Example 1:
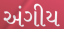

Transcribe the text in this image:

અંગીય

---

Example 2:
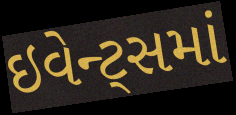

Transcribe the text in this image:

ઇવેન્ટ્સમાં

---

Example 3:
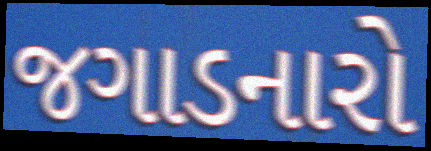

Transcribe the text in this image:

જગાડનારો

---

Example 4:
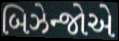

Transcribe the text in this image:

બિઝેન્જોએ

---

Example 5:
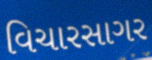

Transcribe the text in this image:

વિચારસાગર